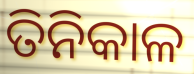
ତିନିକାଳ